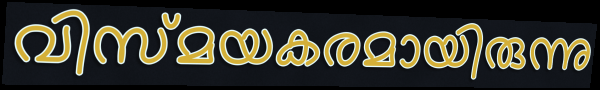
വിസ്മയകരമായിരുന്നു